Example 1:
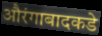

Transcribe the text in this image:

औरंगाबादकडे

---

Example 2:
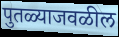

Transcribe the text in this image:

पुतळ्याजवळील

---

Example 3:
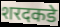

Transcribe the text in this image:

शरदकडे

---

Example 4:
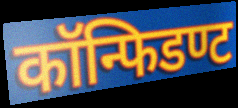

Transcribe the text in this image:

कॉन्फिडण्ट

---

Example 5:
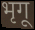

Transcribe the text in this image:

भृगू